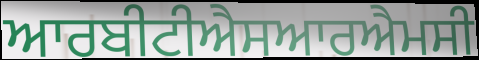
ਆਰਬੀਟੀਐਸਆਰਐਮਸੀ